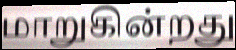
மாறுகின்றது